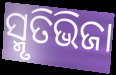
ସ୍ମୃତିଭିଜା